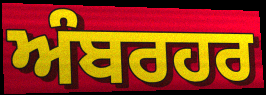
ਅੰਬਰਹਰ